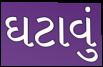
ઘટાવું